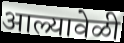
आल्यावेळी